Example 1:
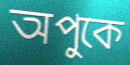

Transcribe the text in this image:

অপুকে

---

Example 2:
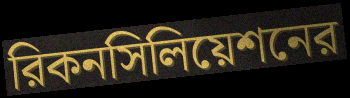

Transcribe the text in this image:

রিকনসিলিয়েশনের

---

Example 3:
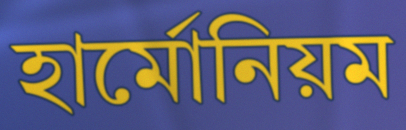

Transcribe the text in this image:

হার্মোনিয়ম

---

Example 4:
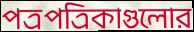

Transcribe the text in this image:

পত্রপত্রিকাগুলোর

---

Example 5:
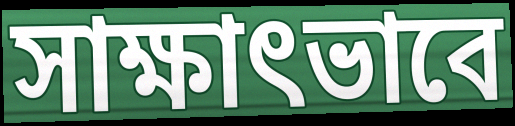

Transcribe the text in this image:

সাক্ষাৎভাবে